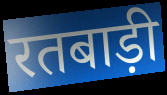
रतबाड़ी